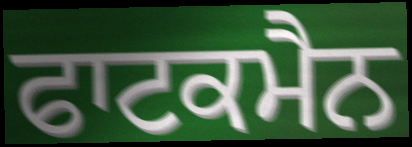
ਫਾਟਕਮੈਨ